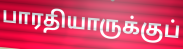
பாரதியாருக்குப்